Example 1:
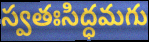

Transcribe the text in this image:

స్వతఃసిద్ధమగు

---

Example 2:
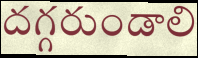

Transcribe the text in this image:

దగ్గరుండాలి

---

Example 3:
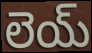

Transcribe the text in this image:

లెయ్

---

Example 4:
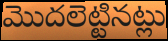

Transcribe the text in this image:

మొదలెట్టినట్లు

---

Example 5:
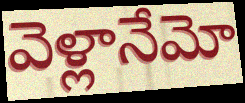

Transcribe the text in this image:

వెళ్లానేమో